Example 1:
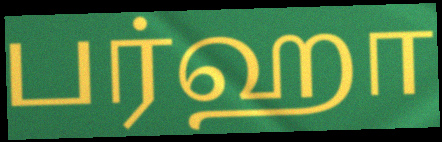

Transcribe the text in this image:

பர்ஹா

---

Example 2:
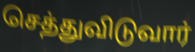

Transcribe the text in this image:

செத்துவிடுவார்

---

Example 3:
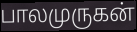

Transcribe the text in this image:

பாலமுருகன்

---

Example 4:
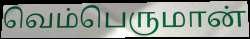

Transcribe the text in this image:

வெம்பெருமான்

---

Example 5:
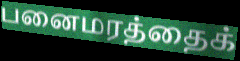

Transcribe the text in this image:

பனைமரத்தைக்